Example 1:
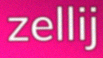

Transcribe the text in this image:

zellij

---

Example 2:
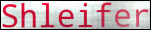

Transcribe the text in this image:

Shleifer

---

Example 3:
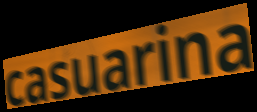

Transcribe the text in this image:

casuarina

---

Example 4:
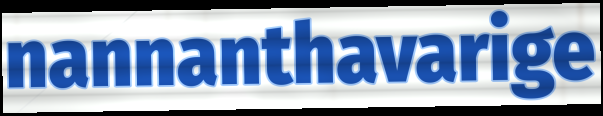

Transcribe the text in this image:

nannanthavarige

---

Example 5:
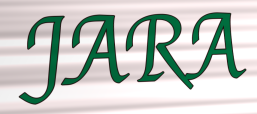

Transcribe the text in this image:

JARA